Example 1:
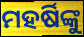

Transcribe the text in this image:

ମହର୍ଷିଙ୍କୁ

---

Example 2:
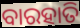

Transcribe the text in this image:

ବାରହାତି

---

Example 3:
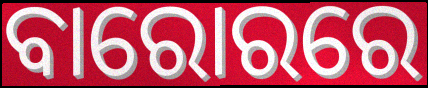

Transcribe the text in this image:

ବାରୋରରେ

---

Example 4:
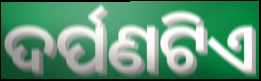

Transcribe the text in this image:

ଦର୍ପଣଟିଏ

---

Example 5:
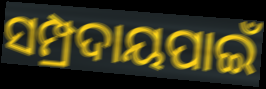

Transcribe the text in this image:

ସମ୍ପ୍ରଦାୟପାଇଁ